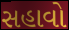
સહાવો